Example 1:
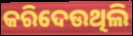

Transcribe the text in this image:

କରିଦେଉଥିଲି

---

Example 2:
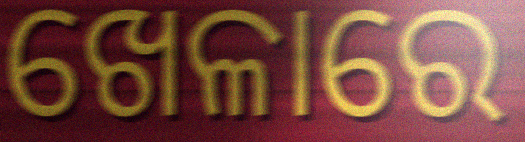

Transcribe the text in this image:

ଖେଳାରେ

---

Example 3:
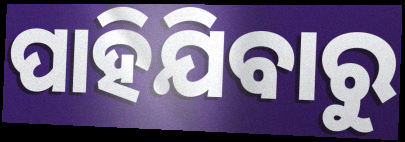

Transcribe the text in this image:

ପାହିଯିବାରୁ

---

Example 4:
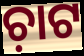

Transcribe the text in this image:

ଚ଼ାଟ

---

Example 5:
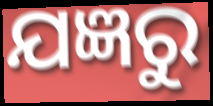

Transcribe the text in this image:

ଯଜ୍ଞରୁ